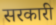
सरकारी